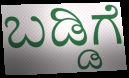
ಬಡ್ಡಿಗೆ